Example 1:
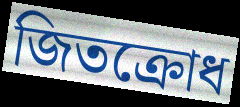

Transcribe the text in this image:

জিতক্রোধ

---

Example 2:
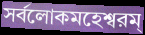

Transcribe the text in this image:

সর্বলোকমহেশ্বরম্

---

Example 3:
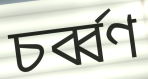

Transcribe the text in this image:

চর্ব্বণ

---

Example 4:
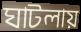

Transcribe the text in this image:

ঘাটলায়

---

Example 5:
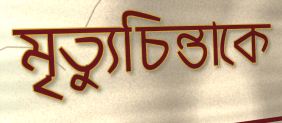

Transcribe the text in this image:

মৃত্যুচিন্তাকে